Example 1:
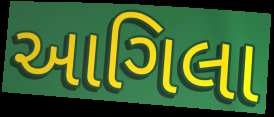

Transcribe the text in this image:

આગિલા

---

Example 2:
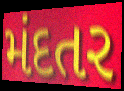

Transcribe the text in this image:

મંદતર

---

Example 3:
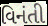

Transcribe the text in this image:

વિનંતી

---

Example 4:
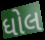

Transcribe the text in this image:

ધોલ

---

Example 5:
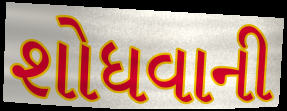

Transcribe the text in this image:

શોધવાની